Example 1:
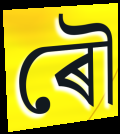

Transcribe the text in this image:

ৰৌ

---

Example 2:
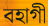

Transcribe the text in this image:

বহাগী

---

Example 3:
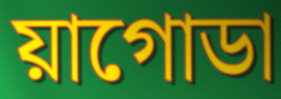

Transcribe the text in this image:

য়াগোডা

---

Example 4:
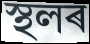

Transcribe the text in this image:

স্থলৰ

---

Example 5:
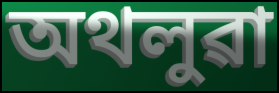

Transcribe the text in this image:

অথলুৱা